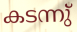
കടന്നു്